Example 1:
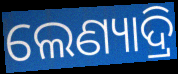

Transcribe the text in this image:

ଲେଣ୍ୟାଦ୍ରି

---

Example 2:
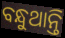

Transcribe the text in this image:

ବନ୍ଧୁଥାନ୍ତି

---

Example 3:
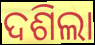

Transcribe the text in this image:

ଦଶିଲା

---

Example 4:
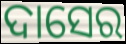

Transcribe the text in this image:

ଦାସେର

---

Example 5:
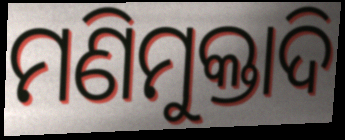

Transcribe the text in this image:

ମଣିମୁକ୍ତାଦି